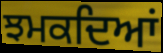
ਝਮਕਦਿਆਂ